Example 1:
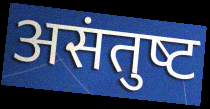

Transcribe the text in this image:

असंतुष्‍ट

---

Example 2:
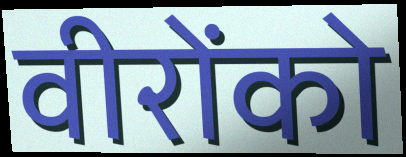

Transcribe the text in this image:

वीरोंको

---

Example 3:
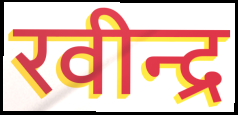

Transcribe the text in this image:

रवीन्द्र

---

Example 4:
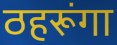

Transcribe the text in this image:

ठहरूंगा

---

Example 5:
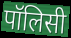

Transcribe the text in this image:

पॉलिसी